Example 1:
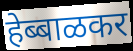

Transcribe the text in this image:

हेब्बाळकर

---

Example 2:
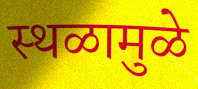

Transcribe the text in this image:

स्थळामुळे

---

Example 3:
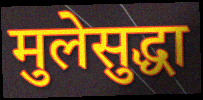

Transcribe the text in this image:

मुलेसुद्धा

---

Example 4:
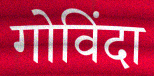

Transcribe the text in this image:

गोविंदा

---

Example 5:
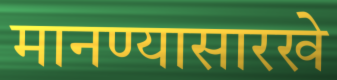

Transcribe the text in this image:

मानण्यासारखे